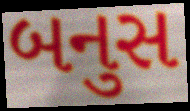
બનુસ